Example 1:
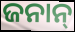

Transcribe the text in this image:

ଜନାନ୍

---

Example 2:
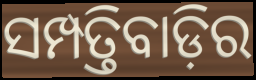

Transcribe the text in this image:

ସମ୍ପତ୍ତିବାଡ଼ିର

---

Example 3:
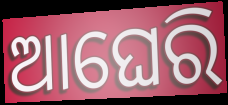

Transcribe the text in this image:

ଆଘେରି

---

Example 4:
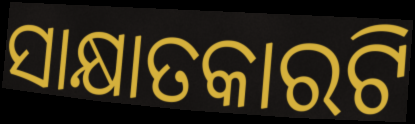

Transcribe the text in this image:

ସାକ୍ଷାତକାରଟି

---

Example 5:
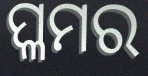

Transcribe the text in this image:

ପ୍ଳମର